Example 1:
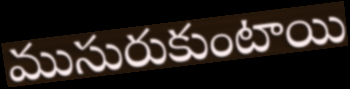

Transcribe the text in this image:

ముసురుకుంటాయి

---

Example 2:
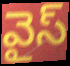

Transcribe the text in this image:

వైస్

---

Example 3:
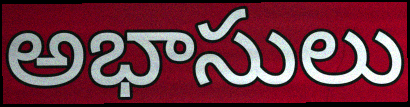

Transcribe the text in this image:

అభాసులు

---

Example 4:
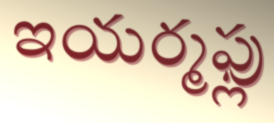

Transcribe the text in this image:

ఇయర్మఫ్లు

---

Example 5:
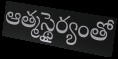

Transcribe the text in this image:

ఆత్మస్థైర్యంతో